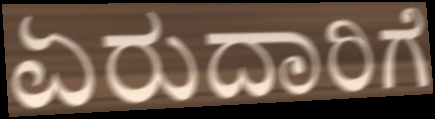
ಏರುದಾರಿಗೆ